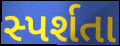
સ્પર્શતા